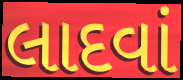
લાદવાં